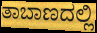
ತಾಬಾಣದಲ್ಲಿ